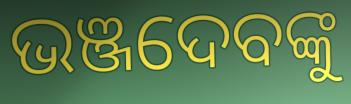
ଭଞ୍ଜଦେବଙ୍କୁ